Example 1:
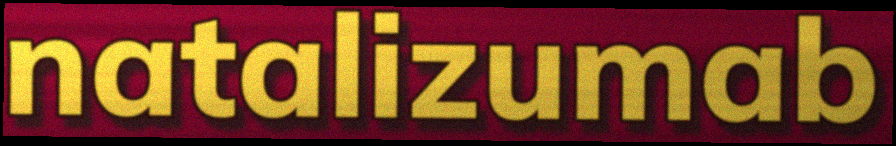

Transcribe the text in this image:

natalizumab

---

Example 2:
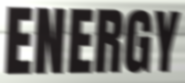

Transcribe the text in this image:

ENERGY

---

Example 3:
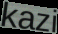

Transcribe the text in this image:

kazi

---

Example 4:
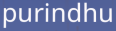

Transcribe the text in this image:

purindhu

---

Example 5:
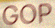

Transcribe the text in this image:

GOP